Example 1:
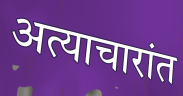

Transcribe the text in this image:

अत्याचारांत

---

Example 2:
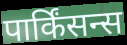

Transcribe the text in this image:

पार्किंसन्स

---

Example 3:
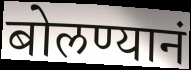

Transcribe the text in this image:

बोलण्यानं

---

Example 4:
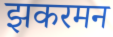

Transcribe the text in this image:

झकरमन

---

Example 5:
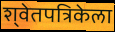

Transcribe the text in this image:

श्वेतपत्रिकेला